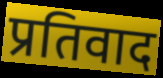
प्रतिवाद